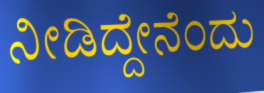
ನೀಡಿದ್ದೇನೆಂದು